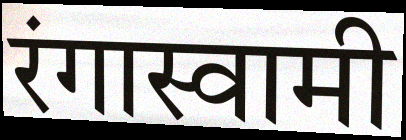
रंगास्वामी